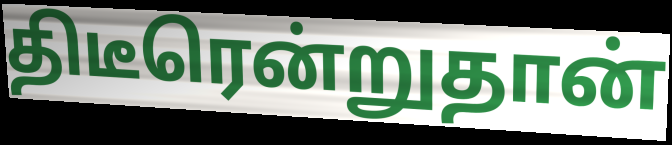
திடீரென்றுதான்